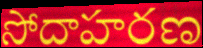
సోదాహరణ